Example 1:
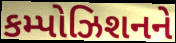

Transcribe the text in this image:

કમ્પોઝિશનને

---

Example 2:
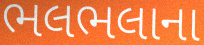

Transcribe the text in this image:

ભલભલાના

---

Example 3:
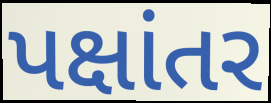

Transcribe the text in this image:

પક્ષાંતર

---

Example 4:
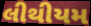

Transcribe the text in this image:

લીથીયમ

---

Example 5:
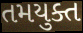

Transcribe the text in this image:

તમયુક્ત